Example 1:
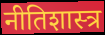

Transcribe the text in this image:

नीतिशास्त्र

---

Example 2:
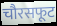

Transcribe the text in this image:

चौरसफूट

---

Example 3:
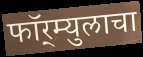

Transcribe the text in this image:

फॉर्म्युलाचा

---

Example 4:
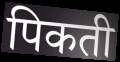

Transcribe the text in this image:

पिकती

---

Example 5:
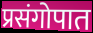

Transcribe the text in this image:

प्रसंगोपात